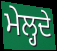
ਮੇਲ੍ਹਦੇ